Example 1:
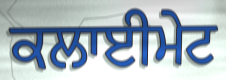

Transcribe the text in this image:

ਕਲਾਈਮੇਟ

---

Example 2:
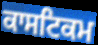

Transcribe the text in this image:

ਕਾਸਟਿਕਮ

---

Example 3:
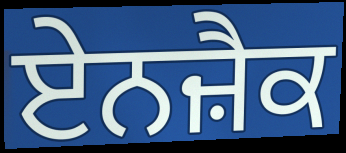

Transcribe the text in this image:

ਏਨਜ਼ੈਕ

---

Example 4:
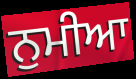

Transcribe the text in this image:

ਨੁਮੀਆ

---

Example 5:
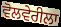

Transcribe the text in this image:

ਵੋਲਵੇਰੀਲਾ